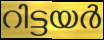
റിട്ടയർ